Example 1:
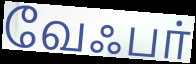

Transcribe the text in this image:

வேஃபர்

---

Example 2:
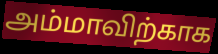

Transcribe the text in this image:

அம்மாவிற்காக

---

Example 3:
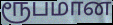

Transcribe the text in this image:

ரூபமான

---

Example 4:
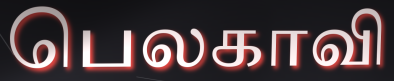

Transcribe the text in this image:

பெலகாவி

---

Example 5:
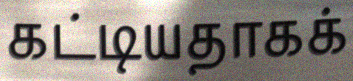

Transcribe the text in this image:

கட்டியதாகக்